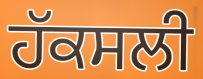
ਹੱਕਸਲੀ